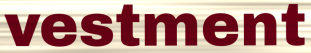
vestment